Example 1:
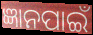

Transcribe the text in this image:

ଜ୍ଞାନପାଇଁ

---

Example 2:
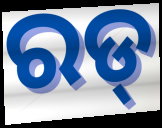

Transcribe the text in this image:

ରଡ୍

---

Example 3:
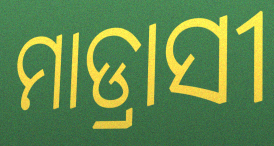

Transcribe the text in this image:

ମାଡ୍ରାସୀ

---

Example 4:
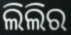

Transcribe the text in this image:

ଲିଲିର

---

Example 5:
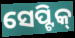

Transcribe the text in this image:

ସେପ୍ଟିକ୍